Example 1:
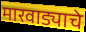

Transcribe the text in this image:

मारवाड्याचे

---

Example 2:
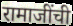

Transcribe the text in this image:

रामाजींची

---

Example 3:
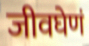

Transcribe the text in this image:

जीवघेणं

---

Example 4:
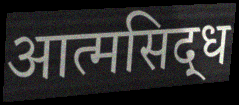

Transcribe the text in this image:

आत्मसिद्ध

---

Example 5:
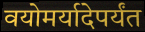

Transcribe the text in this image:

वयोमर्यादेपर्यंत